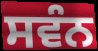
ਸਵੰਨ